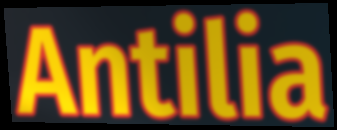
Antilia